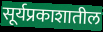
सूर्यप्रकाशातील